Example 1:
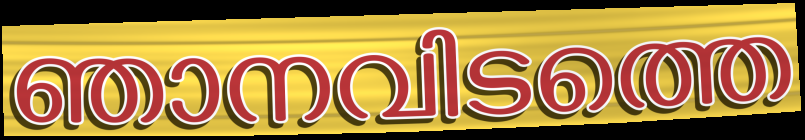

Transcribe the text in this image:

ഞാനവിടത്തെ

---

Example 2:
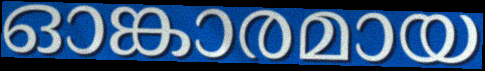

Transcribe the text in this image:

ഓങ്കാരമായ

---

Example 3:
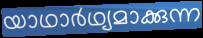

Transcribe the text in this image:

യാഥാർഥ്യമാക്കുന്ന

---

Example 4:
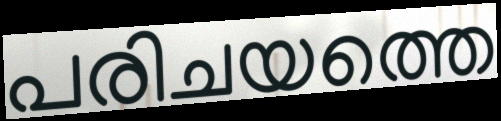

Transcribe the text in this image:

പരിചയത്തെ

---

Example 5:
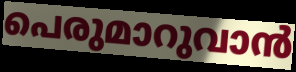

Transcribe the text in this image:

പെരുമാറുവാൻ